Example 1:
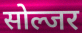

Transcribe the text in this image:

सोल्जर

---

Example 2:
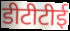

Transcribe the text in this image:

डीटीटीई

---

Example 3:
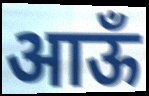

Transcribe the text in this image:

आऊँ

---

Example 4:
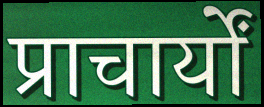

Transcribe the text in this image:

प्राचार्यों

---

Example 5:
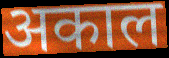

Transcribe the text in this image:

अकाल